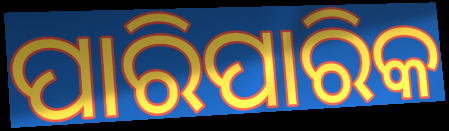
ପାରିପାରିକ